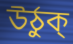
উঠুক্